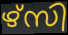
ഴ്സി